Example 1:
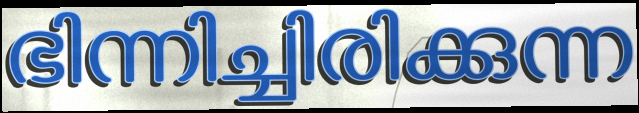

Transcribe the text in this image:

ഭിന്നിച്ചിരിക്കുന്ന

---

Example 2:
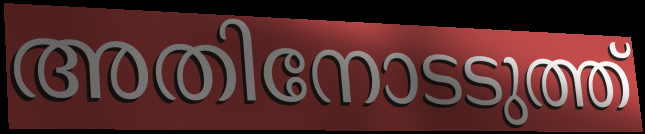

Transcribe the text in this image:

അതിനോടടുത്ത്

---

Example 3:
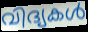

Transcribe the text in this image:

വിദ്യകൾ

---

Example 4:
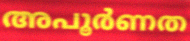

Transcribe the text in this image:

അപൂർണത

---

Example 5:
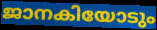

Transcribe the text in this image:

ജാനകിയോടും